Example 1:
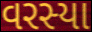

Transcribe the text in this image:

વરસ્યા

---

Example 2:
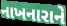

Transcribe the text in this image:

નાખનારાને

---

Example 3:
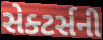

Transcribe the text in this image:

સેક્ટર્સની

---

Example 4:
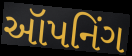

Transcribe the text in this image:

ઑપનિંગ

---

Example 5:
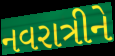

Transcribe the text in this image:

નવરાત્રીને